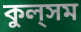
কুল্‌সম